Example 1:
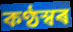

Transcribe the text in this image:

কণ্ঠস্বৰ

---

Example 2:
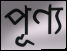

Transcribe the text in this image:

পূণ্য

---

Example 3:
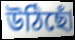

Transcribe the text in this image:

উঠিছোঁ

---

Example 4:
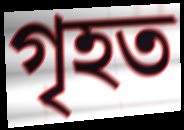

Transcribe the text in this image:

গৃহত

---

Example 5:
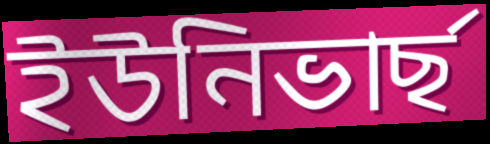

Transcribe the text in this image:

ইউনিভাৰ্ছ